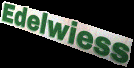
Edelwiess